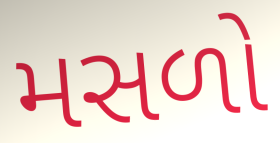
મસળો